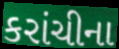
કરાંચીના